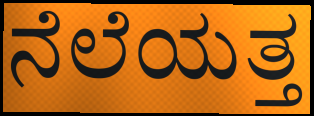
ನೆಲೆಯತ್ತ